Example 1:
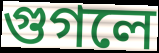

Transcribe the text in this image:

গুগলে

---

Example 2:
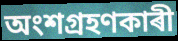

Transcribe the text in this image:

অংশগ্ৰহণকাৰী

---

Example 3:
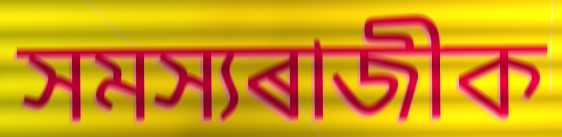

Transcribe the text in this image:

সমস্যৰাজীক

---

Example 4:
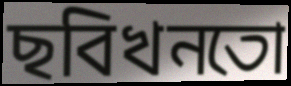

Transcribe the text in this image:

ছবিখনতো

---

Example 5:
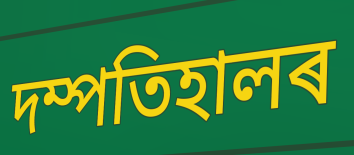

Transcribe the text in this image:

দম্পতিহালৰ